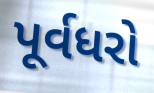
પૂર્વધરો